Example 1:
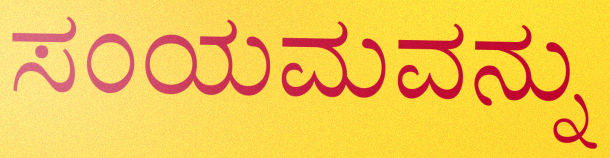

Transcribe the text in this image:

ಸಂಯಮವನ್ನು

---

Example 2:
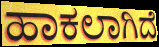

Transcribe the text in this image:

ಹಾಕಲಾಗಿದೆ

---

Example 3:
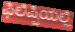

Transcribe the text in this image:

ಫಿಲಿಪ್ಪಿಯಲ್ಲಿ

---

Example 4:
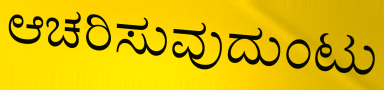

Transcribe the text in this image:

ಆಚರಿಸುವುದುಂಟು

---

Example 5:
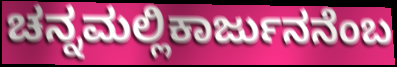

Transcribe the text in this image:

ಚನ್ನಮಲ್ಲಿಕಾರ್ಜುನನೆಂಬ